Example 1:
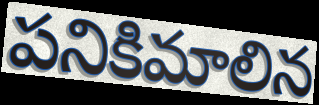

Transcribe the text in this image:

పనికిమాలిన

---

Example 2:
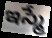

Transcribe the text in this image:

ఇస్మే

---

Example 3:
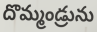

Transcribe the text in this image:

దొమ్మండ్రును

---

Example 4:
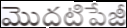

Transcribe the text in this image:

మొదటిపేజీ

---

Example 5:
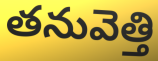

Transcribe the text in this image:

తనువెత్తి